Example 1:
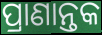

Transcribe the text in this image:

ପ୍ରାଣାନ୍ତକ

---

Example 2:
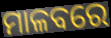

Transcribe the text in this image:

ମାଳବରେ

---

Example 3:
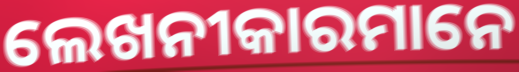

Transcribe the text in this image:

ଲେଖନୀକାରମାନେ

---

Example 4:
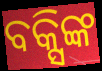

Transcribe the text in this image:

ବକ୍ସିଙ୍କ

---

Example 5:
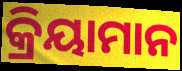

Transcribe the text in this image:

କ୍ରିୟାମାନ